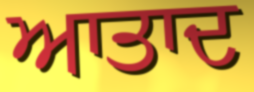
ਆਤਾਦ